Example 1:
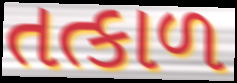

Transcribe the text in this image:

તત્કાળ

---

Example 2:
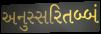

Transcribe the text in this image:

અનુસ્સરિતબ્બં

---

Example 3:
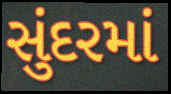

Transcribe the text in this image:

સુંદરમાં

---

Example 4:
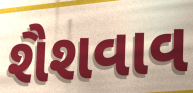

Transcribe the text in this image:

શૈશવાવ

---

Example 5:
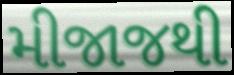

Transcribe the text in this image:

મીજાજથી